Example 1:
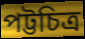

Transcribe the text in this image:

পট্টচিত্র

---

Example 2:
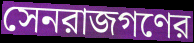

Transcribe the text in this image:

সেনরাজগণের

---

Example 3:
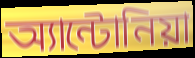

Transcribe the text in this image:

অ্যান্টোনিয়া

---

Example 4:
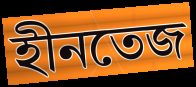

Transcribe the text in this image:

হীনতেজ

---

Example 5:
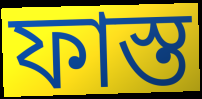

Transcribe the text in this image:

ফাস্ত